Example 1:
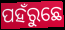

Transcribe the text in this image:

ପହଁରୁଛେ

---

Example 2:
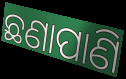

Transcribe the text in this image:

ଛଣାପାଣି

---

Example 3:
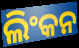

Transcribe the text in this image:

ଲିଂକନ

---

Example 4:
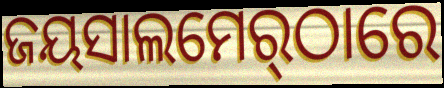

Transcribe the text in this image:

ଜୟସାଲମେର୍‌ଠାରେ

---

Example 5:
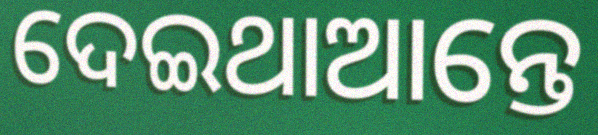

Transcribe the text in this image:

ଦେଇଥାଆନ୍ତେ